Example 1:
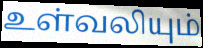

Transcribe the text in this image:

உள்வலியும்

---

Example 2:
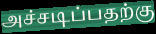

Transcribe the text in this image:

அச்சடிப்பதற்கு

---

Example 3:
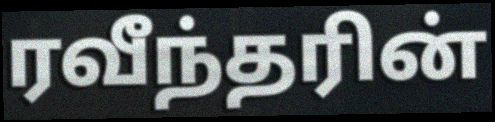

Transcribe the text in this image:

ரவீந்தரின்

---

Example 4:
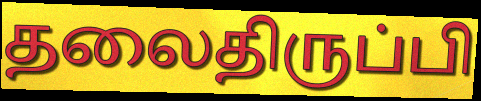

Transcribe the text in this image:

தலைதிருப்பி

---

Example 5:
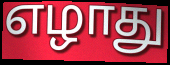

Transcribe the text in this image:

எழாது